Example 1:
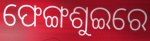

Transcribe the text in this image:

ଫେଙ୍ଗଶୁଇରେ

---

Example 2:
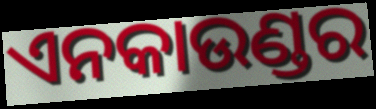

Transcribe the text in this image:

ଏନକାଉଣ୍ଡର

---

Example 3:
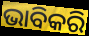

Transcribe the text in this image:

ଭାବିକରି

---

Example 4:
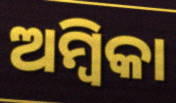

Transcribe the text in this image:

ଅମ୍ବିକା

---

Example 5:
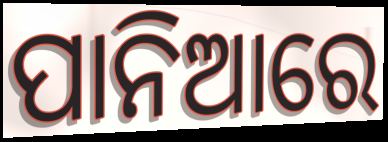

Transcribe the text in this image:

ପାନିଆରେ